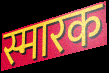
स्मारक